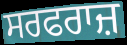
ਸਰਫਰਾਜ਼